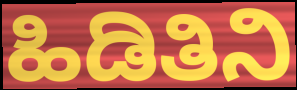
ಹಿಡಿತಿನಿ